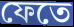
ফেতে